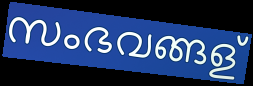
സംഭവങ്ങള്